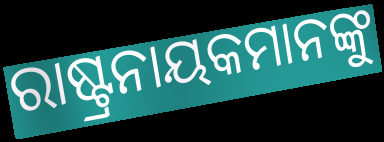
ରାଷ୍ଟ୍ରନାୟକମାନଙ୍କୁ